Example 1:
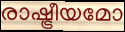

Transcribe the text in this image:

രാഷ്ട്രീയമോ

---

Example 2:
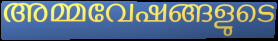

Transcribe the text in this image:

അമ്മവേഷങ്ങളുടെ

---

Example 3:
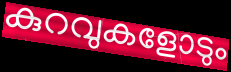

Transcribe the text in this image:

കുറവുകളോടും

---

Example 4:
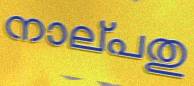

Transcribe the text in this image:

നാല്‌പതു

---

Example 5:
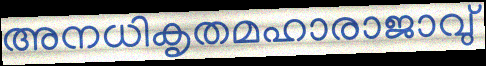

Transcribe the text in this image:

അനധികൃതമഹാരാജാവു്